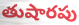
తుషారపు